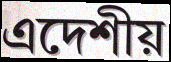
এদেশীয়